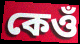
কেওঁ